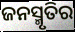
ଜନସ୍ମୃତିର